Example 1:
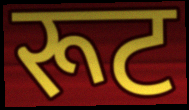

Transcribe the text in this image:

रूट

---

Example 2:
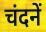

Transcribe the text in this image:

चंदनें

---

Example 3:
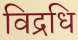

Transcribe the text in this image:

विद्रधि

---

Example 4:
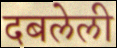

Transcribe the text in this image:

दबलेली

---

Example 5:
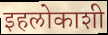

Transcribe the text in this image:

इहलोकाशी